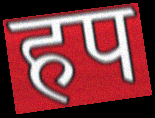
हप